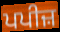
ਪਪੀਜ਼